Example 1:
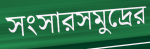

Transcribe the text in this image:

সংসারসমুদ্রের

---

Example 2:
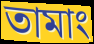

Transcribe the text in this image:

তামাং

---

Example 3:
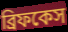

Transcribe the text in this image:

ব্রিফকেস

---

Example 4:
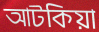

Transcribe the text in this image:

আটকিয়া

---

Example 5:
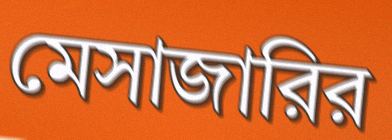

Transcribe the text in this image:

মেসাজারির